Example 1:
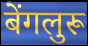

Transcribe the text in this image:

बेंगलुरू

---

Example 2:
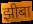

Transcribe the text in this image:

झीबा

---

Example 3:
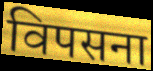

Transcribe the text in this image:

विपसना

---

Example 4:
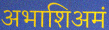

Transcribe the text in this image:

अभाशिअमं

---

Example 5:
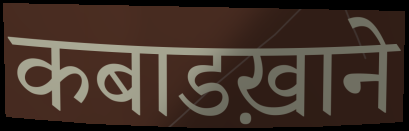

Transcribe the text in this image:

कबाडख़ाने